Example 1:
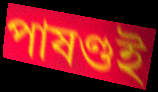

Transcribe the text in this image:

পাষণ্ডই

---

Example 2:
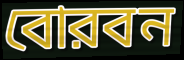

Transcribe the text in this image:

বোরবন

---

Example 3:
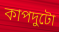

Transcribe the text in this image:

কাপদুটো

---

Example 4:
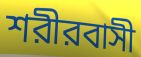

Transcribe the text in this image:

শরীরবাসী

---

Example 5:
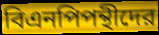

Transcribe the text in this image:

বিএনপিপন্থীদের